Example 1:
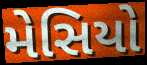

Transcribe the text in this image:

મેસિયો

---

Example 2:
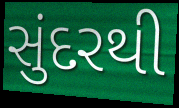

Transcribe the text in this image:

સુંદરથી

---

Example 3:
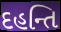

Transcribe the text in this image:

દહન્તિ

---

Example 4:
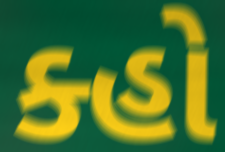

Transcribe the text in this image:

ક્હો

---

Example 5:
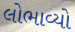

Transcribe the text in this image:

લોભાવ્યો